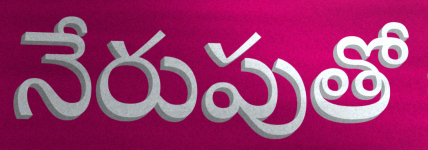
నేరుపుతో